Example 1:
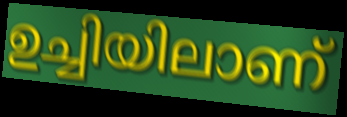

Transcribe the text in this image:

ഉച്ചിയിലാണ്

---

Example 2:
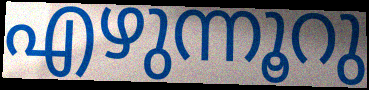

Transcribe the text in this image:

എഴുന്നൂറു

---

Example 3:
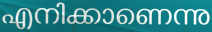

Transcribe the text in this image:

എനിക്കാണെന്നു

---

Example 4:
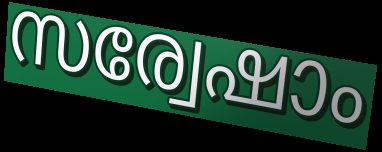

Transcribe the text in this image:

സര്വേഷാം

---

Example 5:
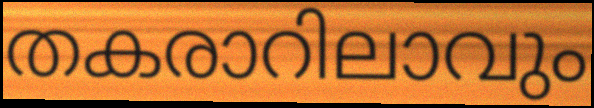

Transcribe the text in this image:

തകരാറിലാവും